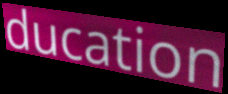
ducation